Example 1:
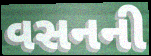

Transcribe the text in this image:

વસનની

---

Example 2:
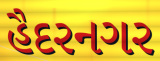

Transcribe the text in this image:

હૈદરનગર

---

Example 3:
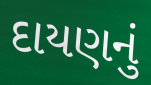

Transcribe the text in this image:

દાયણનું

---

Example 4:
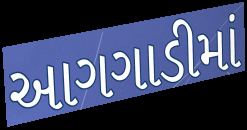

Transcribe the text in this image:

આગગાડીમાં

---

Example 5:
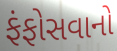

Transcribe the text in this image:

ફંફોસવાનો